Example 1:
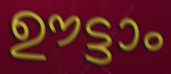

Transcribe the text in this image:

ഊട്ടാം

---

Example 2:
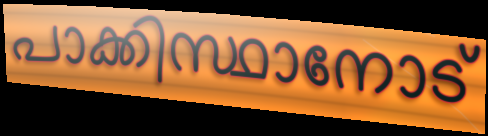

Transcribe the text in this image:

പാക്കിസ്ഥാനോട്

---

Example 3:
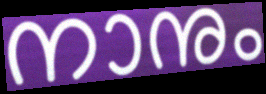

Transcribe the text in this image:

നാനും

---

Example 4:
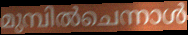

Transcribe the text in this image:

മുമ്പിൽചെന്നാൾ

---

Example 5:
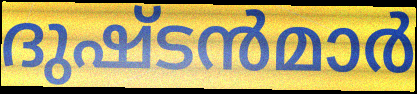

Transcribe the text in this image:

ദുഷ്ടൻമാർ